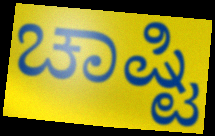
ಚಾಷ್ಟಿ